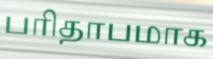
பரிதாபமாக